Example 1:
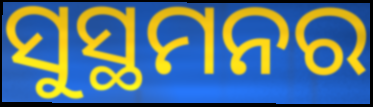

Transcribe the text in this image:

ସୁସ୍ଥମନର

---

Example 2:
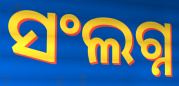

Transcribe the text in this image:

ସଂଲଗ୍ନ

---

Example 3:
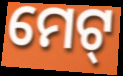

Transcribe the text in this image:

ମେଟ୍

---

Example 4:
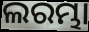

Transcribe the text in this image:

ଲରମ୍ଭା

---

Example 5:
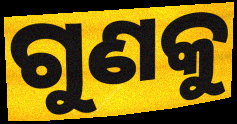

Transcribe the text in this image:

ଗୁଣକୁ